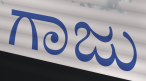
ಗಾಜು